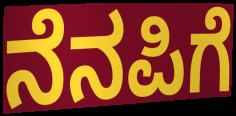
ನೆನಪಿಗೆ